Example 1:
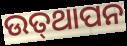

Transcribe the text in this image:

ଉତ୍‍ଥାପନ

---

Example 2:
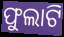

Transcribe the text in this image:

ଫୁଲାଟି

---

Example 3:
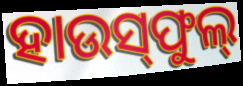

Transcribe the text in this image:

ହାଉସ୍‌ଫୁଲ୍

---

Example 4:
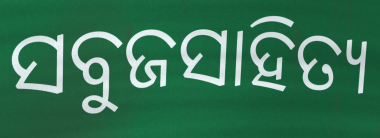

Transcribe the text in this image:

ସବୁଜସାହିତ୍ୟ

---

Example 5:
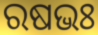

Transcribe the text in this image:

ରଷଭଃ